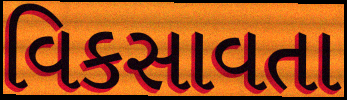
વિકસાવતા